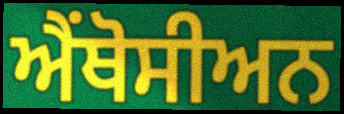
ਐਂਥੋਸੀਅਨ